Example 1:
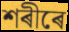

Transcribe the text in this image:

শৰীৰে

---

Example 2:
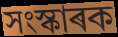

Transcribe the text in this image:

সংস্কাৰক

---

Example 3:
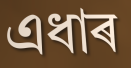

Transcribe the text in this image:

এধাৰ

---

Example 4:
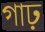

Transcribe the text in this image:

গাঢ়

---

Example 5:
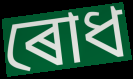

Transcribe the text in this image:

ৰোধ